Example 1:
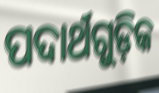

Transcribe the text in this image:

ପଦାର୍ଥଗୁଡ଼ିକ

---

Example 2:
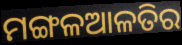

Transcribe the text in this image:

ମଙ୍ଗଳଆଳତିର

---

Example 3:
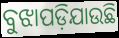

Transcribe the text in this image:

ବୁଝାପଡ଼ିଯାଉଛି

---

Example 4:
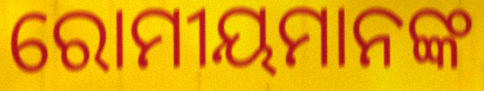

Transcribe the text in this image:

ରୋମୀୟମାନଙ୍କ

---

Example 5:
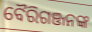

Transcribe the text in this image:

ବୈରିଗଞ୍ଜନଙ୍କ